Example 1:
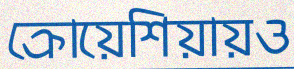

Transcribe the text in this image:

ক্রোয়েশিয়ায়ও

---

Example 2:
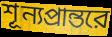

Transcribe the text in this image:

শূন্যপ্রান্তরে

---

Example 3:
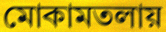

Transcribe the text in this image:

মোকামতলায়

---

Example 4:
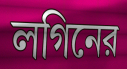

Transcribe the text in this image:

লগিনের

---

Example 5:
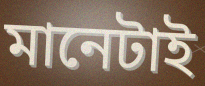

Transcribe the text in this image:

মানেটাই